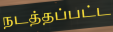
நடத்தப்பட்ட